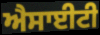
ਐਸਾਈਟੀ